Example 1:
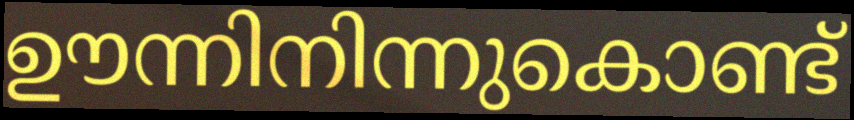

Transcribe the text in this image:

ഊന്നിനിന്നുകൊണ്ട്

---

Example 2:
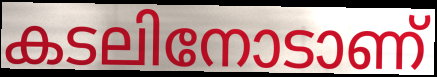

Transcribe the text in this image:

കടലിനോടാണ്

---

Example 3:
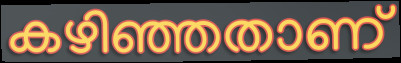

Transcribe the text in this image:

കഴിഞ്ഞതാണ്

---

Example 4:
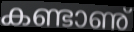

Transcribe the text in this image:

കണ്ടാണു്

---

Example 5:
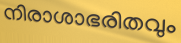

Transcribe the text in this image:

നിരാശാഭരിതവും